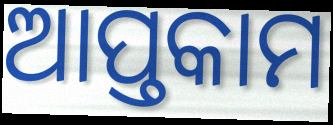
ଆପ୍ତକାମ